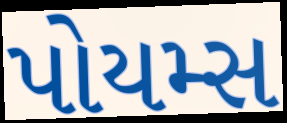
પોયમ્સ